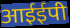
आईईपी